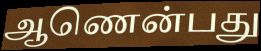
ஆணென்பது